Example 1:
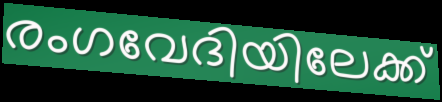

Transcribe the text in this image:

രംഗവേദിയിലേക്ക്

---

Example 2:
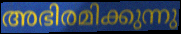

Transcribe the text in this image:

അഭിരമിക്കുന്നു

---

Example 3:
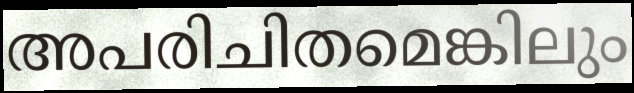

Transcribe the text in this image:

അപരിചിതമെങ്കിലും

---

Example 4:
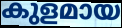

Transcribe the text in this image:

കുളമായ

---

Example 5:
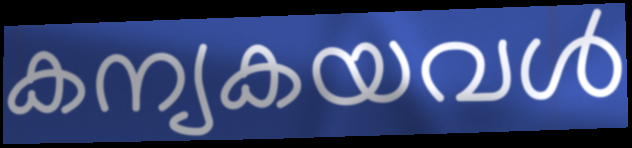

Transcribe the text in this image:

കന്യകയവൾ